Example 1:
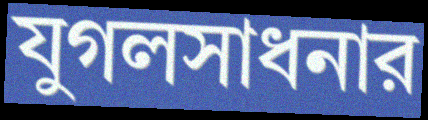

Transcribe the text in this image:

যুগলসাধনার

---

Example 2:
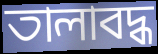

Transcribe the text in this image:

তালাবদ্ধ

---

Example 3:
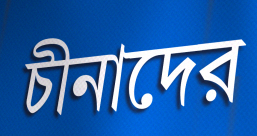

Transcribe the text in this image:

চীনাদের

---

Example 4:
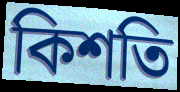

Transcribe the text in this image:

কিশতি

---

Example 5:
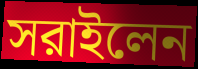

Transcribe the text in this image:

সরাইলেন